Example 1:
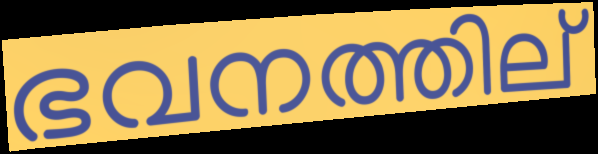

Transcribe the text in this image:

ഭവനത്തില്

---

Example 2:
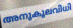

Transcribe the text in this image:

അനുകൂലവിധി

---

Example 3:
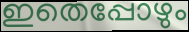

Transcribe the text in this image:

ഇതെപ്പോഴും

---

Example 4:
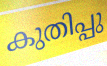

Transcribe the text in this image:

കുതിപ്പു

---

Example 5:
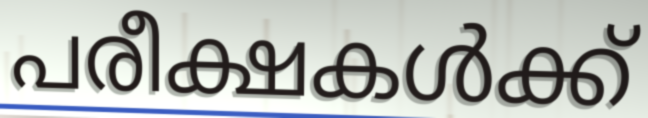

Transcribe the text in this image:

പരീക്ഷകൾക്ക്